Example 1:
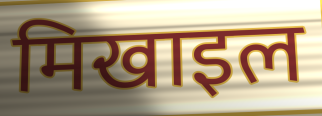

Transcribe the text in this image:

मिखाइल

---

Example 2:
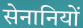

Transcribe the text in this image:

सेनानियों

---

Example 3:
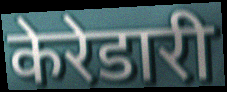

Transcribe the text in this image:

केरेडारी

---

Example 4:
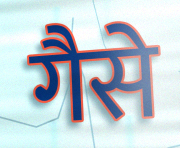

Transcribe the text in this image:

गैसे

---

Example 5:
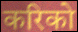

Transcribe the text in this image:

करिको